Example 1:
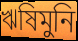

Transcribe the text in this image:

ঋষিমুনি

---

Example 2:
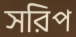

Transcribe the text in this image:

সরিপ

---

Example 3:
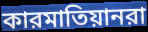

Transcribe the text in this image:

কারমাতিয়ানরা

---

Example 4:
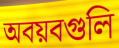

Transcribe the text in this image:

অবয়বগুলি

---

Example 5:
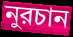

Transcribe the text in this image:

নুরচান